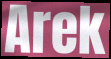
Arek